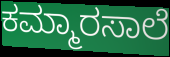
ಕಮ್ಮಾರಸಾಲೆ